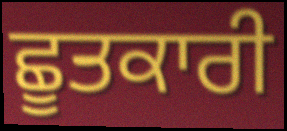
ਛੂਤਕਾਰੀ